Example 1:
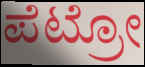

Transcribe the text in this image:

ಪೆಟ್ರೋ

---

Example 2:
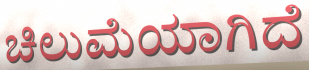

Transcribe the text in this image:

ಚಿಲುಮೆಯಾಗಿದೆ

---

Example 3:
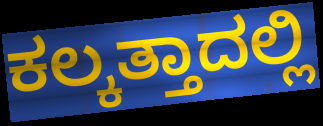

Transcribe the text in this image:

ಕಲ್ಕತ್ತಾದಲ್ಲಿ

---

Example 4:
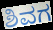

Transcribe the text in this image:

ಶಿವಗ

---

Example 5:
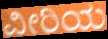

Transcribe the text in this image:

ವೀರಿಯ